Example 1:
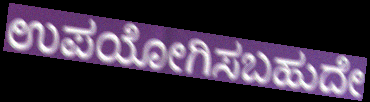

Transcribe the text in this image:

ಉಪಯೋಗಿಸಬಹುದೇ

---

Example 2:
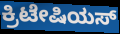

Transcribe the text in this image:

ಕ್ರಿಟೇಷಿಯಸ್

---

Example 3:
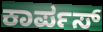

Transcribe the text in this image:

ಕಾರ್ಪಸ್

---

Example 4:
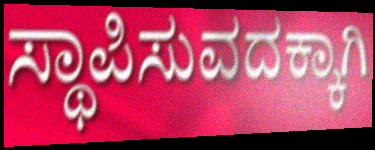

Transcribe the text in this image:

ಸ್ಥಾಪಿಸುವದಕ್ಕಾಗಿ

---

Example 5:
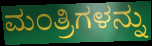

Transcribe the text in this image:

ಮಂತ್ರಿಗಳನ್ನು